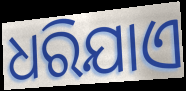
ଧରିଯାଏ